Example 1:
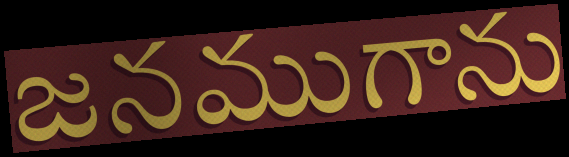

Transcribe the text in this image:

జనముగాను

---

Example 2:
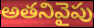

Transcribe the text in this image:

అతనివైపు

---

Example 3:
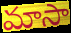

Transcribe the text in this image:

మాసా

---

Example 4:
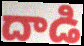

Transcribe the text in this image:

దాడి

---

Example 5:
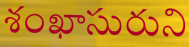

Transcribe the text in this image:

శంఖాసురుని